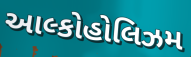
આલ્કોહોલિઝમ